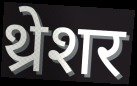
थ्रेशर